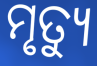
ମୃତ୍ୟୁ